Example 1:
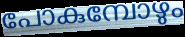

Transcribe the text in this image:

പോകുമ്പോഴും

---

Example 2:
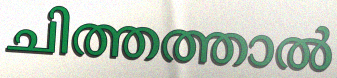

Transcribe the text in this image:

ചിത്തത്താൽ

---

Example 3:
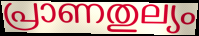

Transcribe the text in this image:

പ്രാണതുല്യം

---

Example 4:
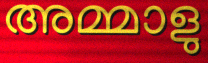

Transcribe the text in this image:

അമ്മാളു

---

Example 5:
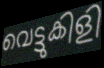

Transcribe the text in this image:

വെട്ടുകിളി